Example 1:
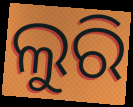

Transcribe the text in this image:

ଲୁରି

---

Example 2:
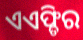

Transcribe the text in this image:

ଏଏଫ୍ଡିର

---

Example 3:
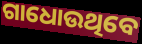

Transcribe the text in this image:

ଗାଧୋଉଥିବେ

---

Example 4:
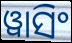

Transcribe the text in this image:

ୱାସିଂ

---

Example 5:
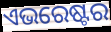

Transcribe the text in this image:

ଏଭରେଷ୍ଟର